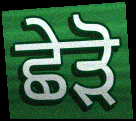
ਛੇੜੋ